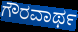
ಗೌರವಾರ್ಥ